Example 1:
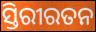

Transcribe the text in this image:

ସ୍ତିରୀରତନ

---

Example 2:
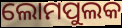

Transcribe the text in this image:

ଲୋମପୁଲକ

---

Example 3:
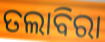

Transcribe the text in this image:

ତଲାବିରା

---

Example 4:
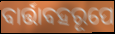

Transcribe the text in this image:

ବାର୍ତ୍ତାବହରୂପେ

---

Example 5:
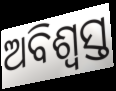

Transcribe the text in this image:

ଅବିଶ୍ୱସ୍ତ